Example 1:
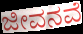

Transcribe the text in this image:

ಜೀವನವೆ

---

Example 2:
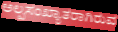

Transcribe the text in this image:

ಅಲ್ಪಸಂಖ್ಯಾತರಾಗಿರುವ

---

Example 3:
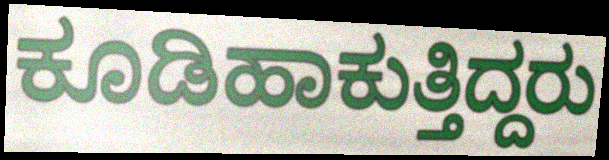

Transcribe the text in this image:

ಕೂಡಿಹಾಕುತ್ತಿದ್ದರು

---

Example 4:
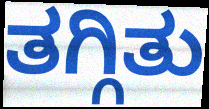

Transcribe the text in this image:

ತಗ್ಗಿತು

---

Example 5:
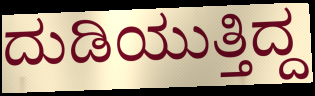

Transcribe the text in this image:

ದುಡಿಯುತ್ತಿದ್ದ